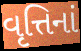
વૃત્તિનાં